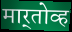
मार्तोव्ह